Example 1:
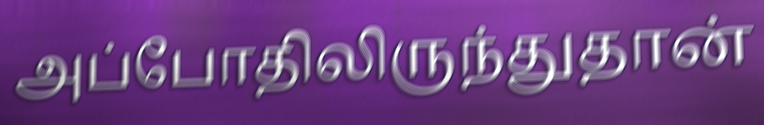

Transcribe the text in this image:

அப்போதிலிருந்துதான்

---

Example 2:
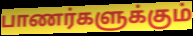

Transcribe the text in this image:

பாணர்களுக்கும்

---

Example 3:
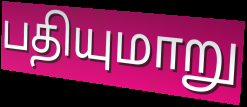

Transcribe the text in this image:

பதியுமாறு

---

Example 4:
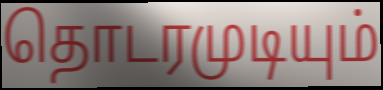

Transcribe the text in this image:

தொடரமுடியும்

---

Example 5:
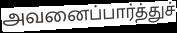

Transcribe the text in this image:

அவனைப்பார்த்துச்